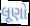
લૂણો